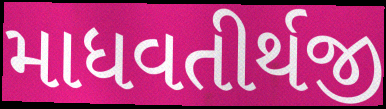
માધવતીર્થજી